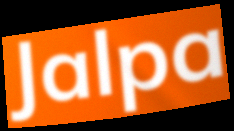
Jalpa